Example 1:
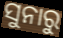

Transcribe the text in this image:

ସୁନାରୁ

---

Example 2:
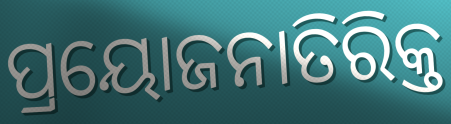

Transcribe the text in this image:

ପ୍ରୟୋଜନାତିରିକ୍ତ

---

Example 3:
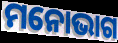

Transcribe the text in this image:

ମନୋଭାଗ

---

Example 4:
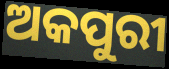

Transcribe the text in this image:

ଅକପୁରୀ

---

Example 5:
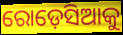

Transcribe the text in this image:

ରୋଡ଼େସିଆକୁ